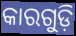
କାରଗୁଡ଼ି